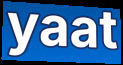
yaat